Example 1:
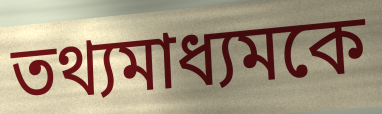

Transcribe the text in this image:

তথ্যমাধ্যমকে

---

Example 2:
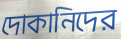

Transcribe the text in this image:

দোকানিদের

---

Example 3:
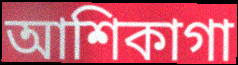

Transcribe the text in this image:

আশিকাগা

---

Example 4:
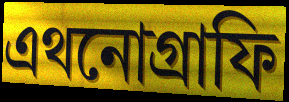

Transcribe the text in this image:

এথনোগ্রাফি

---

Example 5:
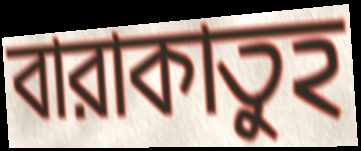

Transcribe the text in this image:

বারাকাতুহ